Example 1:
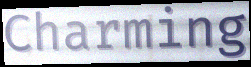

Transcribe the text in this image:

Charming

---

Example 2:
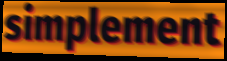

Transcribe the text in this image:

simplement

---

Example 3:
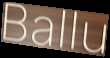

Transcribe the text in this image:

Ballu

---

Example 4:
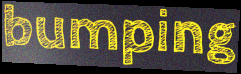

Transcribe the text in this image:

bumping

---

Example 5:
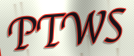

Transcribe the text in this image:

PTWS